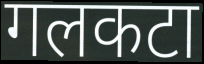
गलकटा